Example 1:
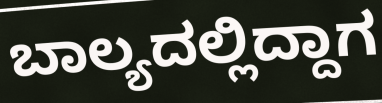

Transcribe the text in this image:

ಬಾಲ್ಯದಲ್ಲಿದ್ದಾಗ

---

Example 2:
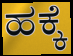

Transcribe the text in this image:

ಹಕ್ಕೆ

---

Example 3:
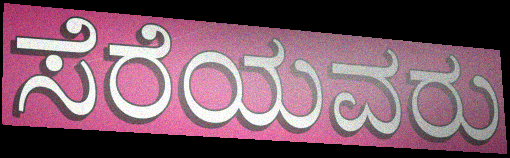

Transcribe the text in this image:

ಸೆರೆಯವರು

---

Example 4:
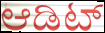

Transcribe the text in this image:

ಆಡಿಟ್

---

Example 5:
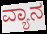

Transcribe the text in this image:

ವ್ಯಾನ